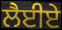
ਲੈਈਏ